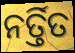
ନର୍ତ୍ତିତ